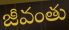
జీవంతు